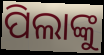
ପିଲାଙ୍କୁ